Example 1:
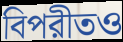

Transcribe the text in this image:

বিপরীতও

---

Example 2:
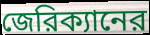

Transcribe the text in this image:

জেরিক্যানের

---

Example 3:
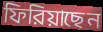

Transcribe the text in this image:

ফিরিয়াছেন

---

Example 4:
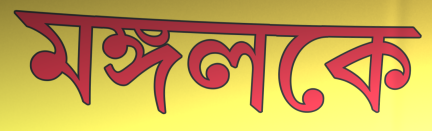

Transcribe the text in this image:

মঙ্গলকে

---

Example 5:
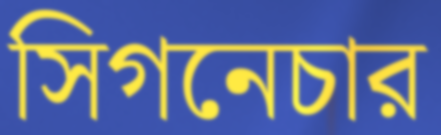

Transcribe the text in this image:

সিগনেচার